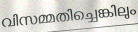
വിസമ്മതിച്ചെങ്കിലും